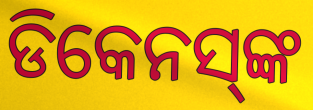
ଡିକେନସ୍‌ଙ୍କ